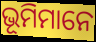
ଭୂମିମାନେ